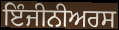
ਇੰਜੀਨੀਅਰਸ